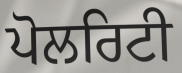
ਪੋਲਰਿਟੀ